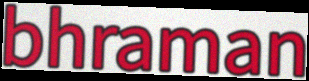
bhraman